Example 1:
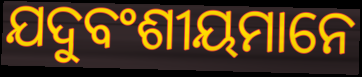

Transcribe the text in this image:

ଯଦୁବଂଶୀୟମାନେ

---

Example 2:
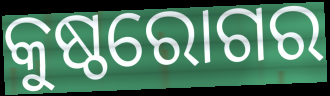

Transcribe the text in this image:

କୁଷ୍ଠରୋଗର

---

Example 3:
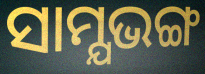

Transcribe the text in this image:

ସାମ୍ଯଭଙ୍ଗ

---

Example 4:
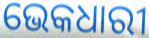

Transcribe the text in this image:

ଭେକଧାରୀ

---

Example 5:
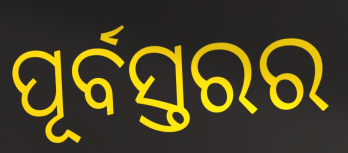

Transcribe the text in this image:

ପୂର୍ବସ୍ତରର